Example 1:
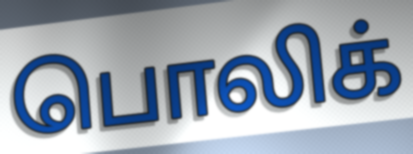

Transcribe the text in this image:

பொலிக்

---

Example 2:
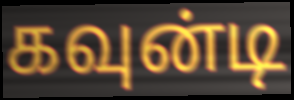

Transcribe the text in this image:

கவுன்டி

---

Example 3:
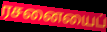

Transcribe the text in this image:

ரசனையைப்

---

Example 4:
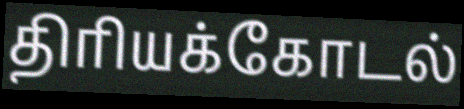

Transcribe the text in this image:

திரியக்கோடல்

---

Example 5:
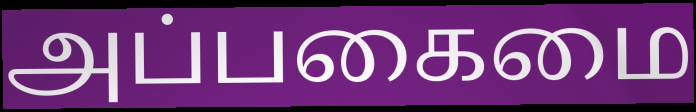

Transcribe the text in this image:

அப்பகைமை